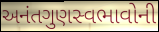
અનંતગુણસ્વભાવોની